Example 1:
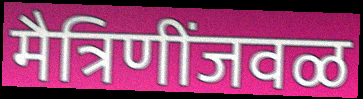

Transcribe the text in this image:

मैत्रिणींजवळ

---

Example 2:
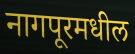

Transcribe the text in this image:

नागपूरमधील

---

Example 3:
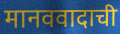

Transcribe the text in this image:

मानववादाची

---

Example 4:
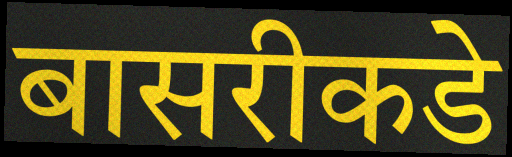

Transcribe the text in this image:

बासरीकडे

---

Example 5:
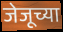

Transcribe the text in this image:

जेजूच्या